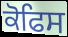
ਕੋਫਿਸ